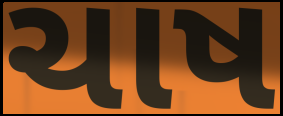
ચાષ